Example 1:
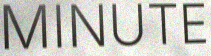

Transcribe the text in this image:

MINUTE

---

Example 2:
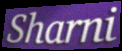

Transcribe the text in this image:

Sharni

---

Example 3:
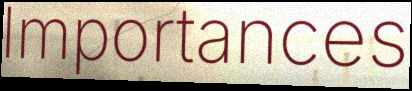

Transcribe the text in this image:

Importances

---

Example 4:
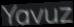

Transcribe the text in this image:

Yavuz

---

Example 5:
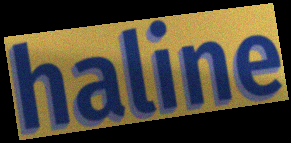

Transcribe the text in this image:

haline